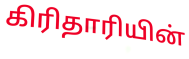
கிரிதாரியின்